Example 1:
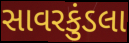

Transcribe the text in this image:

સાવરકુંડલા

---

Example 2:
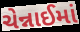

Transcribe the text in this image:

ચેન્નાઈમાં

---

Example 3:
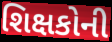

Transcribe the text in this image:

શિક્ષકોની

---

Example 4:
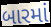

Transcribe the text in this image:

બારમાં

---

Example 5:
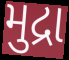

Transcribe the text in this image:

મુદ્રા